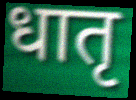
धातृ